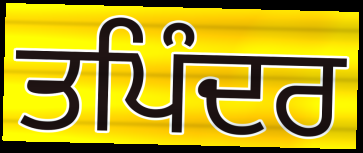
ਤਪਿੰਦਰ